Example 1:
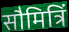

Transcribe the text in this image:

सौमित्रिं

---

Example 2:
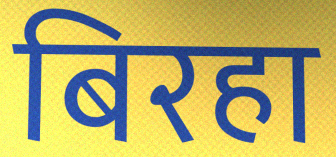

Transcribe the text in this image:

बिरहा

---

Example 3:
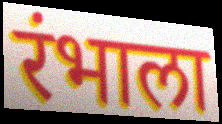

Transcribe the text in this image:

रंभाला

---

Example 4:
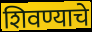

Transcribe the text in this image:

शिवण्याचे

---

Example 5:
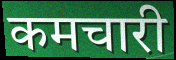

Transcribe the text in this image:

कमचारी